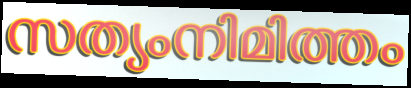
സത്യംനിമിത്തം